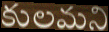
కులమని